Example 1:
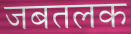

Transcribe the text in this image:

जबतलक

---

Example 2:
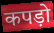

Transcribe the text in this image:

कपड़ो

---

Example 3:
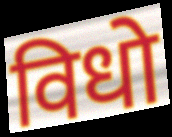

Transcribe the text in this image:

विधो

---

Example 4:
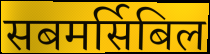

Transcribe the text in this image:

सबमर्सिबिल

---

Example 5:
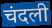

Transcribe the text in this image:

चंदली